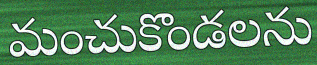
మంచుకొండలను